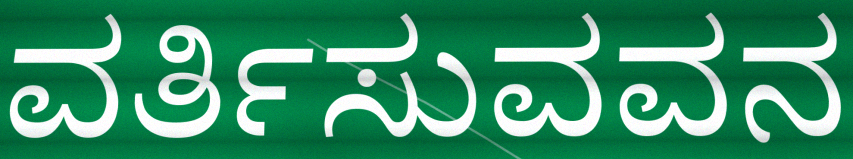
ವರ್ತಿಸುವವನ